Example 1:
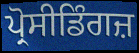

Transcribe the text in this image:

ਪ੍ਰੋਸੀਡਿੰਗਜ਼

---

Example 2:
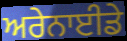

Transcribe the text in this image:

ਅਰੇਨਾਈਡੇ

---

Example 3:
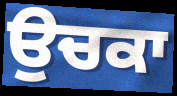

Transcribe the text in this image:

ਉਚਕਾ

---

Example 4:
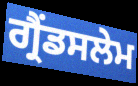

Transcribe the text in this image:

ਗ੍ਰੈਂਡਸਲੇਮ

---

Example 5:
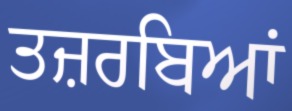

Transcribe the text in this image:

ਤਜ਼ਰਬਿਆਂ